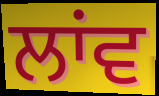
ਲਾਂਵ